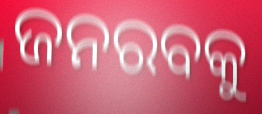
ଜନରବକୁ